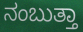
ನಂಬುತ್ತಾ